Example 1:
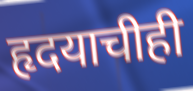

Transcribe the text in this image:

हृदयाचीही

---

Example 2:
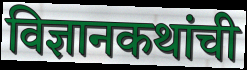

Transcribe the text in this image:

विज्ञानकथांची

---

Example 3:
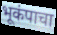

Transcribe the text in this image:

भूकंपाचा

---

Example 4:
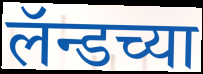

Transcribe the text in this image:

लॅन्डच्या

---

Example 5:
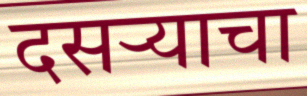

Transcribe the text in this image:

दसऱ्याचा